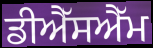
ਡੀਐੱਸਐੱਮ